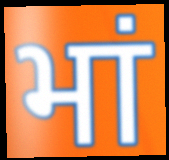
भां